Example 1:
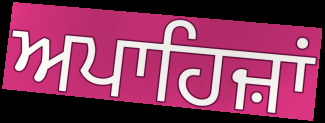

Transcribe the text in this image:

ਅਪਾਹਿਜ਼ਾਂ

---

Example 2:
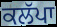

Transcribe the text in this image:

ਕਲੱਪਾ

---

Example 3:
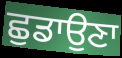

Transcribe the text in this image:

ਛੁਡਾਉਣਾ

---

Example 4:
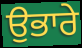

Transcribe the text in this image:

ਉਭਾਰੇ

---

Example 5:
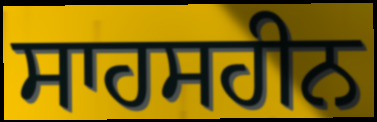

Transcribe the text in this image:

ਸਾਹਸਹੀਨ